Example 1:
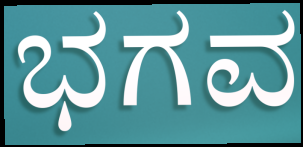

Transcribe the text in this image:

ಭಗವ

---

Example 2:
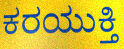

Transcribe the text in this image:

ಕರಯುಕ್ತಿ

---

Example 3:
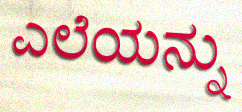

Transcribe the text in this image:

ಎಲೆಯನ್ನು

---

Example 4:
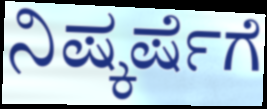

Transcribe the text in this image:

ನಿಷ್ಕರ್ಷೆಗೆ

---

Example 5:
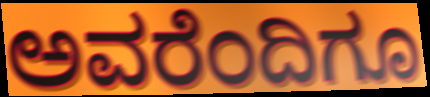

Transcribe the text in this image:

ಅವರೆಂದಿಗೂ